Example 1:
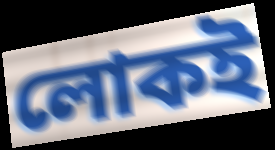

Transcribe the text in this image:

লোকই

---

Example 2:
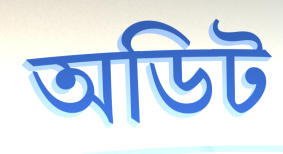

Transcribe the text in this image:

অডিট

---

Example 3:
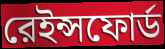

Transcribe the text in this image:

রেইন্সফোর্ড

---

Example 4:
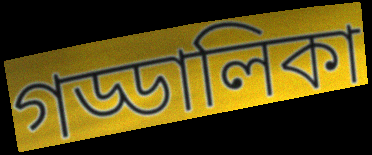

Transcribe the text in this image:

গড্ডালিকা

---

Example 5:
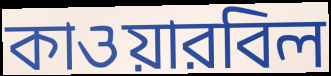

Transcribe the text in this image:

কাওয়ারবিল